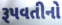
રૂપવતીનો